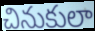
చినుకులా